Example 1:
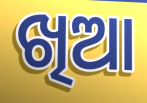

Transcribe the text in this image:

ଖିଆ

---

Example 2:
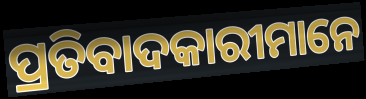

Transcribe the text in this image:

ପ୍ରତିବାଦକାରୀମାନେ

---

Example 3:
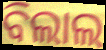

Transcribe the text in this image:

ବିଲାଲ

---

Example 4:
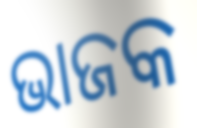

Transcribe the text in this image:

ଭାଜକ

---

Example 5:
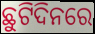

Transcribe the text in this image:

ଛୁଟିଦିନରେ